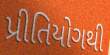
પ્રીતિયોગથી